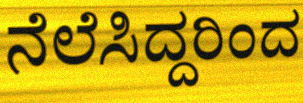
ನೆಲೆಸಿದ್ದರಿಂದ